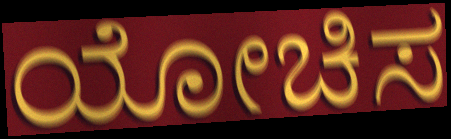
ಯೋಚಿಸ